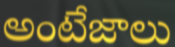
అంటేజాలు